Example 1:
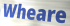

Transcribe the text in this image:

Wheare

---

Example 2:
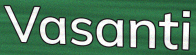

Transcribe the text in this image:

Vasanti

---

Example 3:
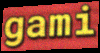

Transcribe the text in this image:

gami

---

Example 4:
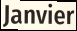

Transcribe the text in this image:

Janvier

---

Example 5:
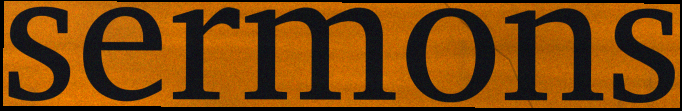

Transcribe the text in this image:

sermons